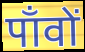
पाँवों